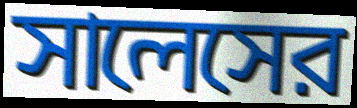
সালেসের